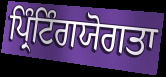
ਪ੍ਰਿੰਟਿੰਗਯੋਗਤਾ